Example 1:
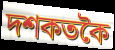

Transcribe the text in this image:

দশকতকৈ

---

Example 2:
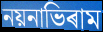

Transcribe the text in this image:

নয়নাভিৰাম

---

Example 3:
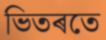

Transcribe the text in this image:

ভিতৰতে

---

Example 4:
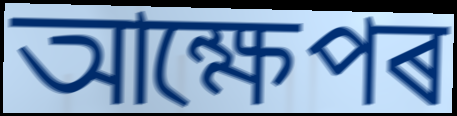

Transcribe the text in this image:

আক্ষেপৰ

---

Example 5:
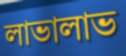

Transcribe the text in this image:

লাভালাভ